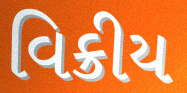
વિક્રીય